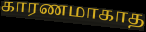
காரணமாகாத